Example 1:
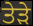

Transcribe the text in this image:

ਤੇੜੇ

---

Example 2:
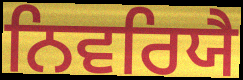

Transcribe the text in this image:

ਨਿਵਰਿਯੈ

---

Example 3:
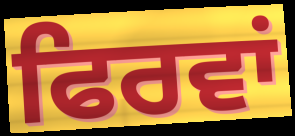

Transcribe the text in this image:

ਫਿਰਵਾਂ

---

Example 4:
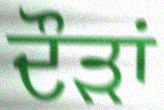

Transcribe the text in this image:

ਦੌੜਾਂ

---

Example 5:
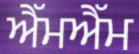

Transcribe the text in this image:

ਐੱਮਐੱਮ